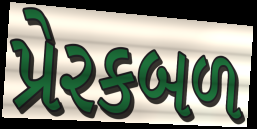
પ્રેરકબળ